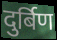
दुर्बिण